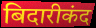
बिदारीकंद